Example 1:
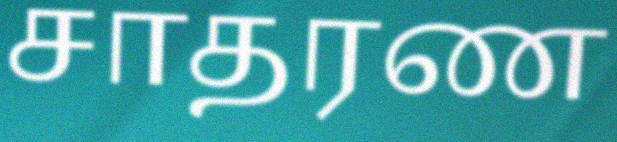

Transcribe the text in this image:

சாதரண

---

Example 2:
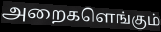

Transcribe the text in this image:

அறைகளெங்கும்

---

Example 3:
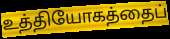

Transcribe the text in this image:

உத்தியோகத்தைப்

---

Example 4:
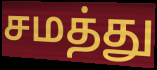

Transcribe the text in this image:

சமத்து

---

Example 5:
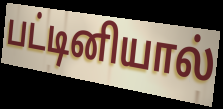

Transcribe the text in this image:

பட்டினியால்